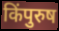
किंपुरुष